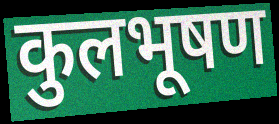
कुलभूषण